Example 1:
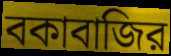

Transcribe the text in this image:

বকাবাজির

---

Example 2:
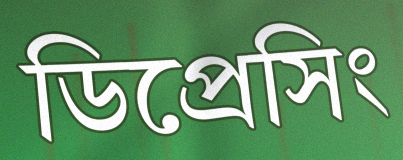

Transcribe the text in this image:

ডিপ্রেসিং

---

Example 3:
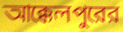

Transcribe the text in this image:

আক্কেলপুরের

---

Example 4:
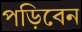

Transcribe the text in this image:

পড়িবেন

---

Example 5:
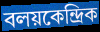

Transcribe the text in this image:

বলয়কেন্দ্রিক